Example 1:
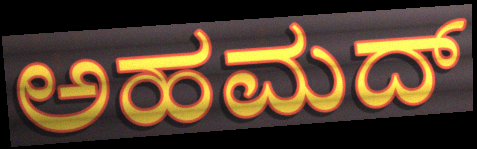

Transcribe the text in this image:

ಅಹಮದ್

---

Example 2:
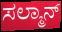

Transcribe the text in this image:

ಸಲ್ಮಾನ್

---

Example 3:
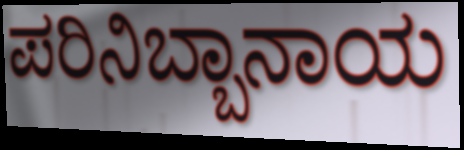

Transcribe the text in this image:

ಪರಿನಿಬ್ಬಾನಾಯ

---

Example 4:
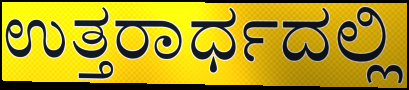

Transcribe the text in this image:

ಉತ್ತರಾರ್ಧದಲ್ಲಿ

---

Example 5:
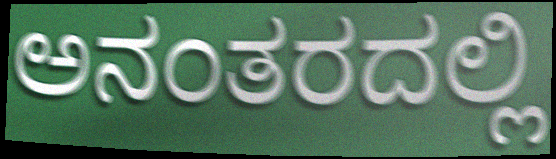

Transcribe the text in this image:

ಅನಂತರದಲ್ಲಿ